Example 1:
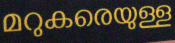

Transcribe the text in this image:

മറുകരെയുള്ള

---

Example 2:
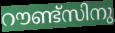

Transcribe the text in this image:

റൗണ്ട്സിനു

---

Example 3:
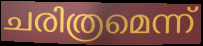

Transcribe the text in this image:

ചരിത്രമെന്ന്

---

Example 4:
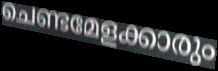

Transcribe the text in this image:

ചെണ്ടമേളക്കാരും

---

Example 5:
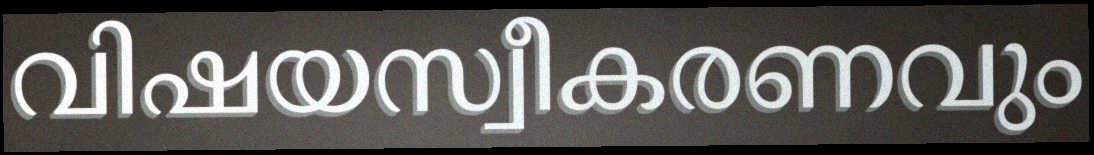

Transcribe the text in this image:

വിഷയസ്വീകരണവും